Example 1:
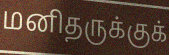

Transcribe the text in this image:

மனிதருக்குக்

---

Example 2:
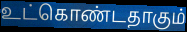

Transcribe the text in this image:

உட்கொண்டதாகும்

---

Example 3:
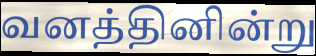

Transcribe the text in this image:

வனத்தினின்று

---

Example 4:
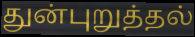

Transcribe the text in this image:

துன்புறுத்தல்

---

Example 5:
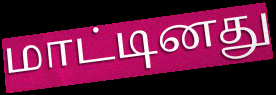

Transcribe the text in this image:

மாட்டினது